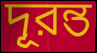
দূরন্ত